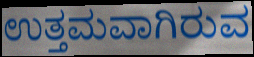
ಉತ್ತಮವಾಗಿರುವ